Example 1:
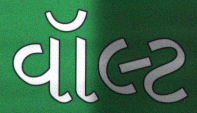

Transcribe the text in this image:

વૉલ્ટ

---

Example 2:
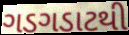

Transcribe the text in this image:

ગડગડાટથી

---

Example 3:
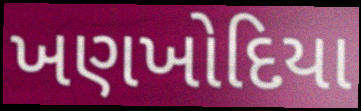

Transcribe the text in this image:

ખણખોદિયા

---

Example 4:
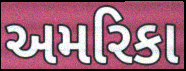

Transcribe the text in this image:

અમરિકા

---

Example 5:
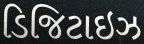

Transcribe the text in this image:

ડિજિટાઇઝ